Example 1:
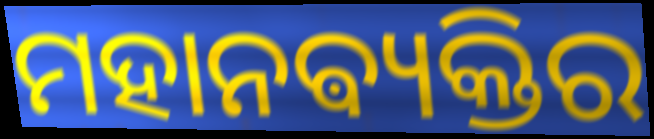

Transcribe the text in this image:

ମହାନଵ୍ୟକ୍ତିର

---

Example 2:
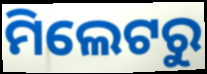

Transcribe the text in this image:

ମିଲେଟରୁ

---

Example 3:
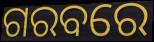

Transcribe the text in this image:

ଗରବରେ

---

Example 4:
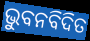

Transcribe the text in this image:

ଭୁବନବିଦିତ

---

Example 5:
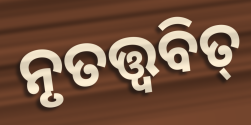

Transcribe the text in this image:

ନୃତତ୍ତ୍ୱବିତ୍